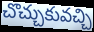
చొచ్చుకువచ్చి